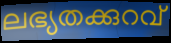
ലഭ്യതക്കുറവ്